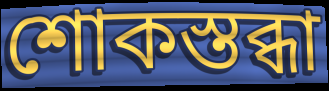
শোকস্তব্ধা